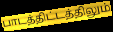
பாடத்திட்டத்திலும்